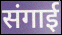
संगाई